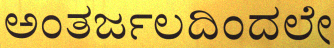
ಅಂತರ್ಜಲದಿಂದಲೇ